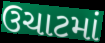
ઉચાટમાં